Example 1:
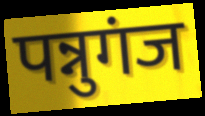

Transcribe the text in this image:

पन्नुगंज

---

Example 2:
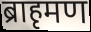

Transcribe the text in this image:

ब्राहृमण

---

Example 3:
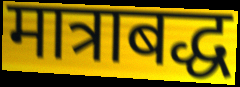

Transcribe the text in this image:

मात्राबद्ध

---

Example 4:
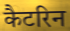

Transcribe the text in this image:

कैटरिन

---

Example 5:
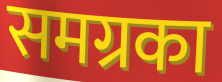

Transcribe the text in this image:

समग्रका